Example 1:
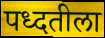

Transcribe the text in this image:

पध्दतीला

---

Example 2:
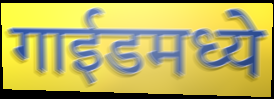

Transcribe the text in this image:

गाईडमध्ये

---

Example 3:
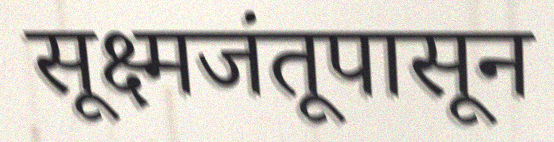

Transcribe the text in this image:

सूक्ष्मजंतूपासून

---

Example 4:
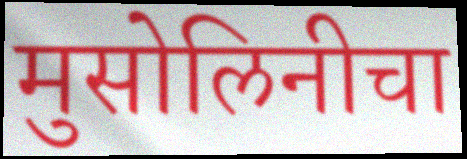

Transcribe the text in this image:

मुसोलिनीचा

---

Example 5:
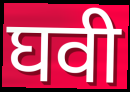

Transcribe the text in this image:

घवी